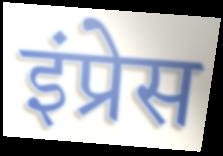
इंप्रेस